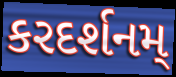
કરદર્શનમ્